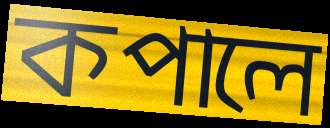
কপালে